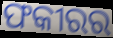
ଫକୀରର